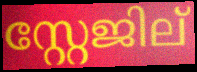
സ്റ്റേജില്